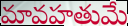
మావహతుమే